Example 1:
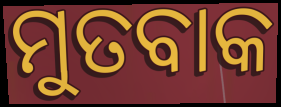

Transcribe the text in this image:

ମୁତବାକ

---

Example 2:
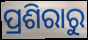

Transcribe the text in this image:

ପ୍ରଶିରାରୁ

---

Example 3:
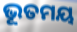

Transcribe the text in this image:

ଭୂତମୟ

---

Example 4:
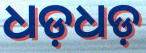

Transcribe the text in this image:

ଧଡ଼ଧଡ଼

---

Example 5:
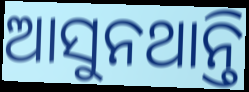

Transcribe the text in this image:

ଆସୁନଥାନ୍ତି